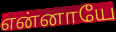
என்னாயே